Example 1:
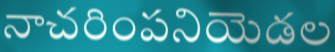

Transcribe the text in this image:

నాచరింపనియెడల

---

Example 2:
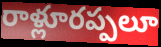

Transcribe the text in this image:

రాళ్లూరప్పలూ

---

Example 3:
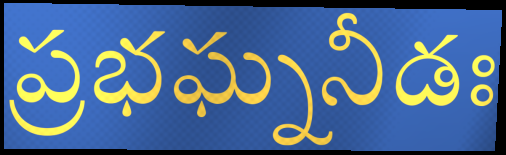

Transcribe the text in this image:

ప్రభఘ్ననీడః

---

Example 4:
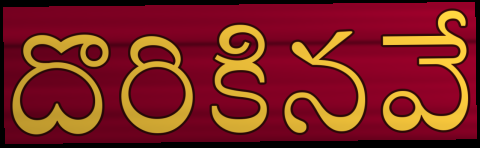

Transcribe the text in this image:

దొరికినవే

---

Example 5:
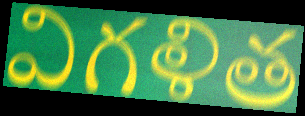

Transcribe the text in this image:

విగళిత